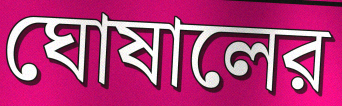
ঘোষালের